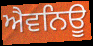
ਐਵਨਿਊ